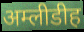
अम्लीडीह